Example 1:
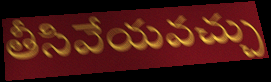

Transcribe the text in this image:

తీసివేయవచ్చు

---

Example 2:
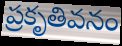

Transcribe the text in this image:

ప్రకృతివనం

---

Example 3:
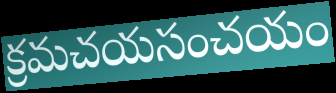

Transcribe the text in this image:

క్రమచయసంచయం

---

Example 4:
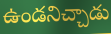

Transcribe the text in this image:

ఉండనిచ్చాడు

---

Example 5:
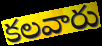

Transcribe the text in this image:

కలవారు